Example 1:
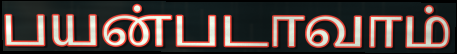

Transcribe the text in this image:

பயன்படாவாம்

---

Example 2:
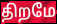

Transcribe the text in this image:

திறமே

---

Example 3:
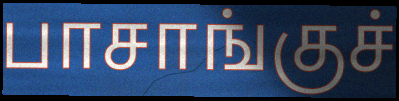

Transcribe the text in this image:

பாசாங்குச்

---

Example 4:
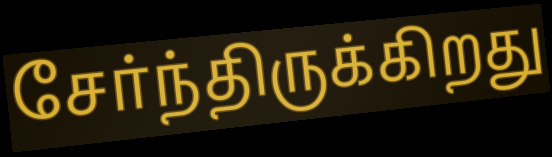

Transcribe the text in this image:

சேர்ந்திருக்கிறது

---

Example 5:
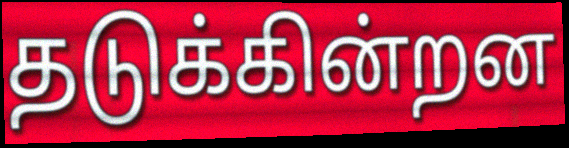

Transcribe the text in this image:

தடுக்கின்றன